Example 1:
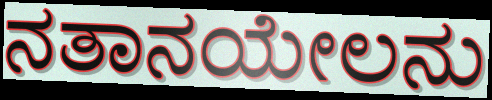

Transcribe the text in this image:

ನತಾನಯೇಲನು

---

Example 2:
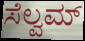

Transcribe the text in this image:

ಸೆಲ್ವಮ್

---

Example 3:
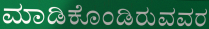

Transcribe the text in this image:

ಮಾಡಿಕೊಂಡಿರುವವರ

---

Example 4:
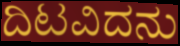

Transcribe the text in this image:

ದಿಟವಿದನು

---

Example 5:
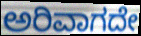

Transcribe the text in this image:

ಅರಿವಾಗದೇ